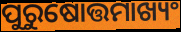
ପୁରୁଷୋତ୍ତମାଖ୍ୟଂ